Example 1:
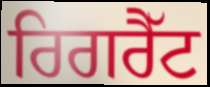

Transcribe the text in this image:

ਰਿਗਰੈੱਟ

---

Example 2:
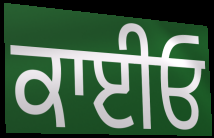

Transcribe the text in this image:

ਕਾਈਓ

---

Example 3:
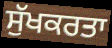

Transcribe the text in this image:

ਸੁੱਖਕਰਤਾ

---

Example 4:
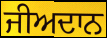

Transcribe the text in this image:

ਜੀਅਦਾਨ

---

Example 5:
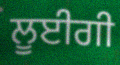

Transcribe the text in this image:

ਲੂਈਗੀ